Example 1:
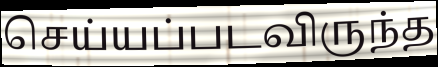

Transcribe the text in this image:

செய்யப்படவிருந்த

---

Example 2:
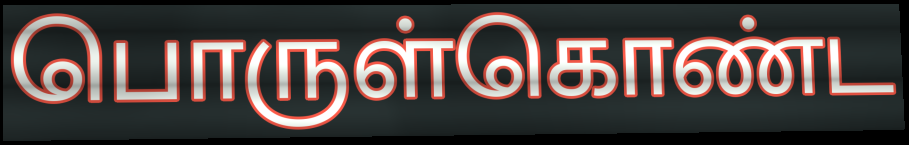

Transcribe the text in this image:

பொருள்கொண்ட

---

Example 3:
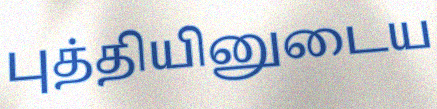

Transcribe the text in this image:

புத்தியினுடைய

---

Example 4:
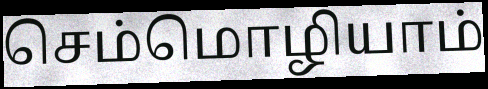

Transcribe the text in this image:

செம்மொழியாம்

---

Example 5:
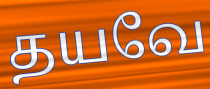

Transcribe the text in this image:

தயவே